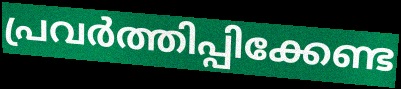
പ്രവർത്തിപ്പിക്കേണ്ട